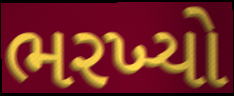
ભરખ્યો